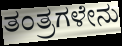
ತಂತ್ರಗಳೇನು